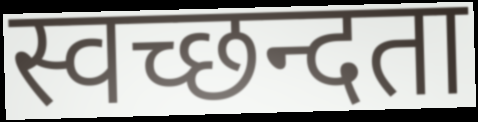
स्वच्छन्दता